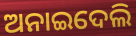
ଅନାଇଦେଲି